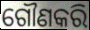
ଗୌଣକରି